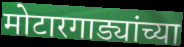
मोटारगाड्यांच्या